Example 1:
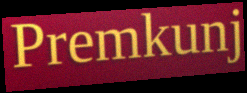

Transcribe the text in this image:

Premkunj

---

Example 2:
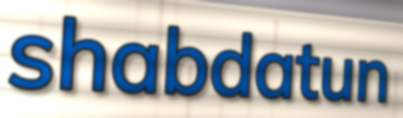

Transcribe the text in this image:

shabdatun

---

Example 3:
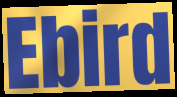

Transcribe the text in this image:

Ebird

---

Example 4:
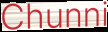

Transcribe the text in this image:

Chunni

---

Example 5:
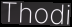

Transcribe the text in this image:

Thodi